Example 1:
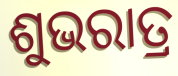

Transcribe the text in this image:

ଶୁଭରାତ୍ର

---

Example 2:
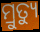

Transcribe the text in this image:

ମ୍ରୁତ୍ୟୁ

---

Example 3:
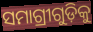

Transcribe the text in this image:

ସମାଗ୍ରୀଗୁଡ଼ିକୁ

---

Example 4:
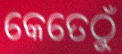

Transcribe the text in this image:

କେତେଠୁଁ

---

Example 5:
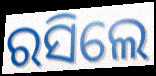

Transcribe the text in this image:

ରସିଲେ